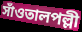
সাঁওতালপল্লী